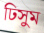
ঢিসুম